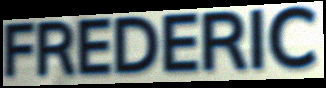
FREDERIC